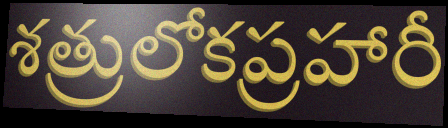
శత్రులోకప్రహారీ